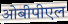
ओबीपीएल